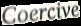
Coercive